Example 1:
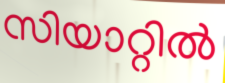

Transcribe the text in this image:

സിയാറ്റിൽ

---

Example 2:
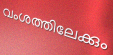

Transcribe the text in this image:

വംശത്തിലേക്കും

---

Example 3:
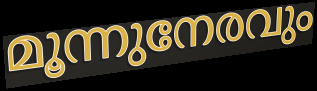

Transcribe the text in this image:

മൂന്നുനേരവും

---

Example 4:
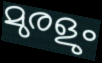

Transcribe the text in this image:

മുരളും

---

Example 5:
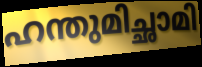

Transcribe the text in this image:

ഹന്തുമിച്ഛാമി